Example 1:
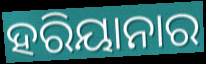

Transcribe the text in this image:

ହରିୟାନାର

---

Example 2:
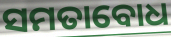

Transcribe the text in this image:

ସମତାବୋଧ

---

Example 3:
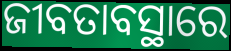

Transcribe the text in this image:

ଜୀବତାବସ୍ଥାରେ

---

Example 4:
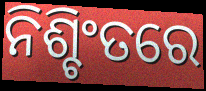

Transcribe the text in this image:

ନିଶ୍ଚିଂତରେ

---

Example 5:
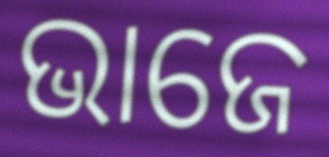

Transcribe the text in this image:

ଭାଜେ